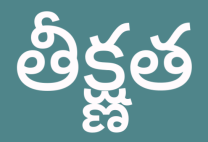
తీక్ష్ణత